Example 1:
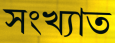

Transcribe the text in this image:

সংখ্যাত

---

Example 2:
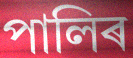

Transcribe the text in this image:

পালিৰ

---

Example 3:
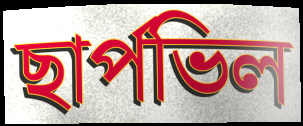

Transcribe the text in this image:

ছাৰ্পভিল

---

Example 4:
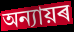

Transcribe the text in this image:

অন্যায়ৰ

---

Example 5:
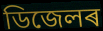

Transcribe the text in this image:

ডিজেলৰ